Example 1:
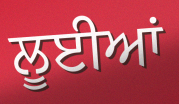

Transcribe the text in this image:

ਲੂਈਆਂ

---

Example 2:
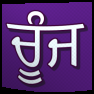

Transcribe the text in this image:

ਚੂੰਜ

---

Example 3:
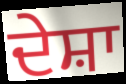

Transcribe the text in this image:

ਦੇਸ਼ਾ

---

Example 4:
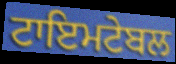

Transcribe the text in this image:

ਟਾਇਮਟੇਬਲ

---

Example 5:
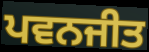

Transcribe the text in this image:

ਪਵਨਜੀਤ